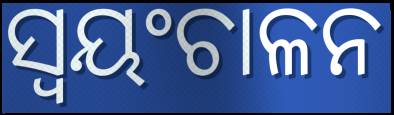
ସ୍ବୟଂଚାଳନ